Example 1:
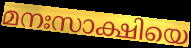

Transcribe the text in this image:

മനഃസാക്ഷിയെ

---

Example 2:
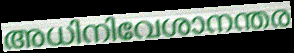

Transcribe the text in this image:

അധിനിവേശാനന്തര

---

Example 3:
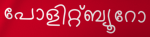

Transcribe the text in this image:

പോളിറ്റ്ബ്യൂറോ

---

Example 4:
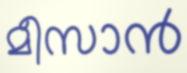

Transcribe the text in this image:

മീസാൻ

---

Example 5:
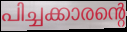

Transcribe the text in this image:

പിച്ചക്കാരന്റെ